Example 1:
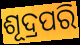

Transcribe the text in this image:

ଶୂଦ୍ରପରି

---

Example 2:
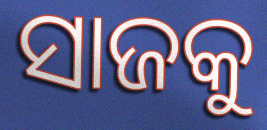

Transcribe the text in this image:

ସାଜକୁ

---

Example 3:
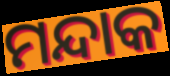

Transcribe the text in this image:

ମନ୍ଦାକ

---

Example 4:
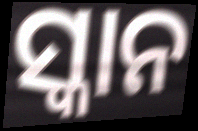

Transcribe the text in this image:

ସ୍କାନ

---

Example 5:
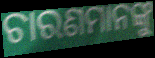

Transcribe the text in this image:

ଚାରଣମାନଙ୍କୁ